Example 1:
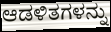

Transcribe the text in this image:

ಆಡಳಿತಗಳನ್ನು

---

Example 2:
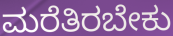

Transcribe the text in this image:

ಮರೆತಿರಬೇಕು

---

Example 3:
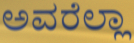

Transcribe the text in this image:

ಅವರೆಲ್ಲಾ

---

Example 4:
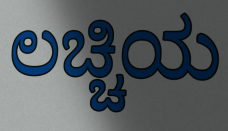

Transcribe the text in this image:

ಲಚ್ಚಿಯ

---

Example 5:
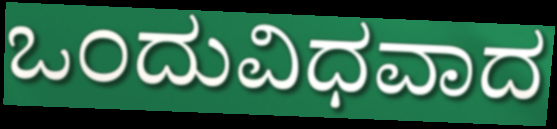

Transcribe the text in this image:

ಒಂದುವಿಧವಾದ